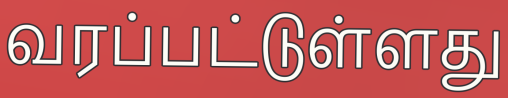
வரப்பட்டுள்ளது